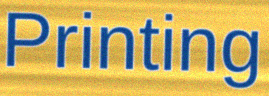
Printing